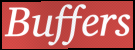
Buffers